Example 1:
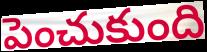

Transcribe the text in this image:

పెంచుకుంది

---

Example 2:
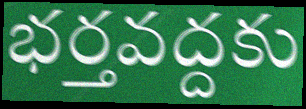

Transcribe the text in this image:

భర్తవద్దకు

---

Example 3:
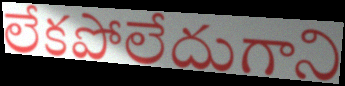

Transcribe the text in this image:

లేకపోలేదుగాని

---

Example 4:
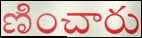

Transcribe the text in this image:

ణించారు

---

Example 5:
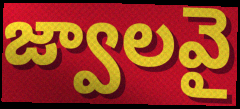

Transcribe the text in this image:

జ్వాలవై